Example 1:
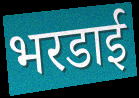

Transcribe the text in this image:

भरडाई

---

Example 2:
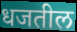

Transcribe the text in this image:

धजतील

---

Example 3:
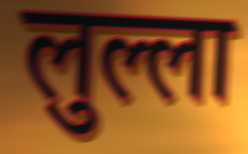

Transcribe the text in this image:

लुल्ला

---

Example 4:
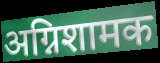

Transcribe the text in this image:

अग्निशामक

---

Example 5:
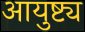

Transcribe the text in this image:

आयुष्ट्य